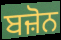
ਬਜ਼ੋਨ